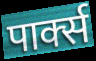
पार्क्‍स